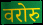
वरोरु